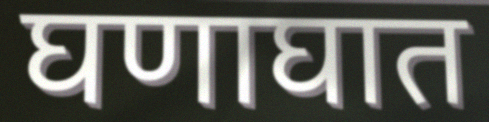
घणाघात